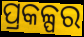
ପ୍ରକଳ୍ପର